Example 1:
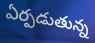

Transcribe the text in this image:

ఏర్పడుతున్న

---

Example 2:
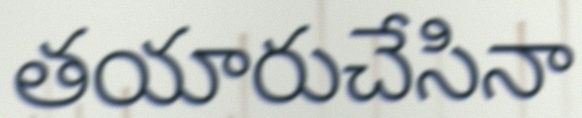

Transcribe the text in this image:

తయారుచేసినా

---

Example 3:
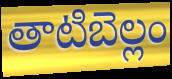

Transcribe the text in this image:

తాటిబెల్లం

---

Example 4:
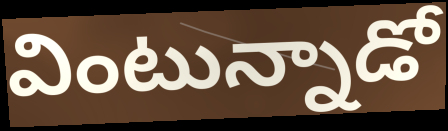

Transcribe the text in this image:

వింటున్నాడో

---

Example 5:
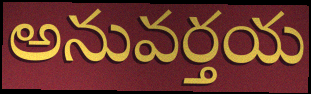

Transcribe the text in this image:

అనువర్తయ